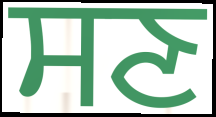
ਸਣ